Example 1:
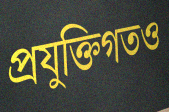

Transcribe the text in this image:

প্রযুক্তিগতও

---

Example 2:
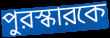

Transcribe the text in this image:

পুরস্কারকে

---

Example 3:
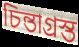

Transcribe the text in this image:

চিন্তাগ্রস্ত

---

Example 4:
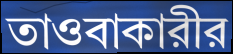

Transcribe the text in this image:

তাওবাকারীর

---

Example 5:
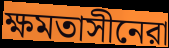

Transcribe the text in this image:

ক্ষমতাসীনেরা